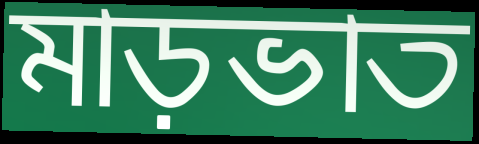
মাড়ভাত